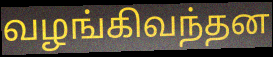
வழங்கிவந்தன